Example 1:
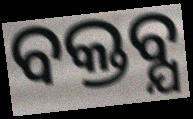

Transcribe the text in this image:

ବକ୍ତବ୍ଯ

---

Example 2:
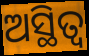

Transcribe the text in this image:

ଅସ୍ଥିତ୍ୱ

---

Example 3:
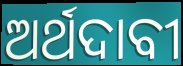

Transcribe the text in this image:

ଅର୍ଥଦାବୀ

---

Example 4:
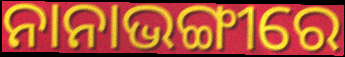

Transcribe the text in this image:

ନାନାଭଙ୍ଗୀରେ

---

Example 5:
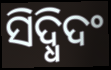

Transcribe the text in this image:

ସିଦ୍ଧିଦଂ